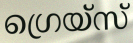
ഗ്രെയ്സ്